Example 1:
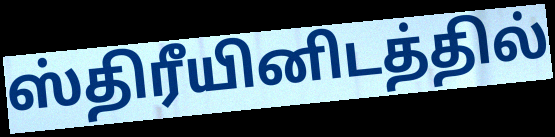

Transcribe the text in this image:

ஸ்திரீயினிடத்தில்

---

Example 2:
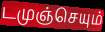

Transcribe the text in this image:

டமுஞ்செயும்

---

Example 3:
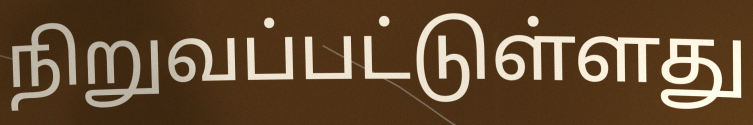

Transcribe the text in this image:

நிறுவப்பட்டுள்ளது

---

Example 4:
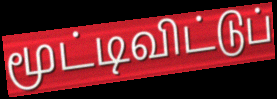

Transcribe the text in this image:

மூட்டிவிட்டுப்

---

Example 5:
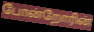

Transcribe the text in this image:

போன்றோரின்